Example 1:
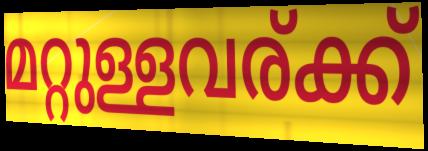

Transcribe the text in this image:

മറ്റുള്ളവര്ക്ക്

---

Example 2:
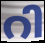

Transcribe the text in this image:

റി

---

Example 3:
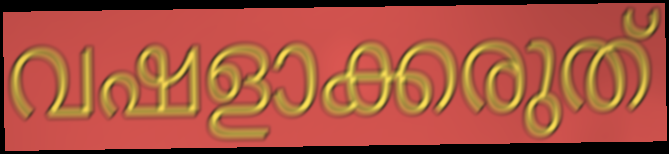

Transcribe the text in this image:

വഷളാക്കരുത്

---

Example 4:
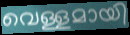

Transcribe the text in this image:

വെള്ളമായി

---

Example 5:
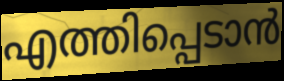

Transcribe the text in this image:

എത്തിപ്പെടാൻ